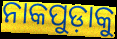
ନାକପୁଡ଼ାକୁ